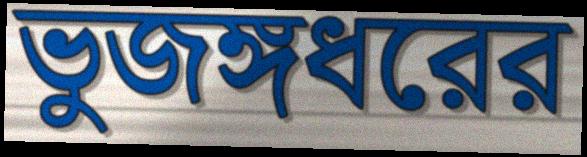
ভুজঙ্গধরের